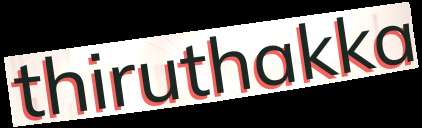
thiruthakka